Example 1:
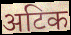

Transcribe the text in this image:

अटिक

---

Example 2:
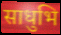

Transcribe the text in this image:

साधुभि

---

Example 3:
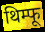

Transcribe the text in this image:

थिम्फू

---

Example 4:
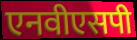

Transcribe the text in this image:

एनवीएसपी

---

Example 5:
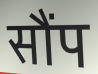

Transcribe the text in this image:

सौंप